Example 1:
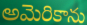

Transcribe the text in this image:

అమెరికాను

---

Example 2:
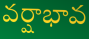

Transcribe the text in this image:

వర్షాభావ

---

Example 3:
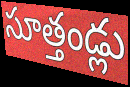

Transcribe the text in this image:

సూత్తండ్లు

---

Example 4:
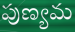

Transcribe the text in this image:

పుణ్యమ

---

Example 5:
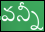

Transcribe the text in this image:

వన్నీ